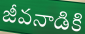
జీవనాడికి